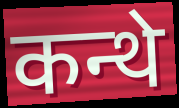
कन्थे